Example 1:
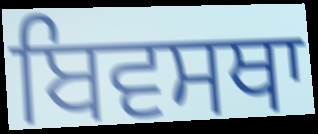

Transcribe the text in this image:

ਬਿਵਸਥਾ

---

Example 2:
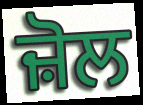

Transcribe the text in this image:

ਜ਼ੋਲ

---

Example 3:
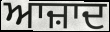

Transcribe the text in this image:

ਆਜ਼ਾਦ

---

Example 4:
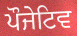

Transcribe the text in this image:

ਪੌਜੇਟਿਵ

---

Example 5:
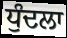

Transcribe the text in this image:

ਧੁੰਦਲਾ